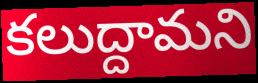
కలుద్దామని